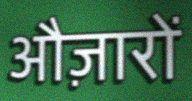
औज़ारों